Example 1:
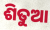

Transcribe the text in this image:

ଶିତୁଆ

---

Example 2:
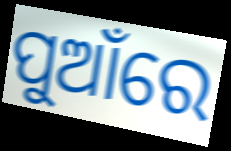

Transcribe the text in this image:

ପୁଆଁରେ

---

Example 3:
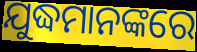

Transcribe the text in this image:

ଯୁଦ୍ଧମାନଙ୍କରେ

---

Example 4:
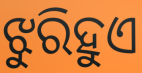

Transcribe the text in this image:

ଝୁରିହୁଏ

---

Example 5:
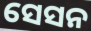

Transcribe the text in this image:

ସେସନ